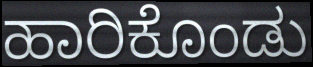
ಹಾರಿಕೊಂಡು